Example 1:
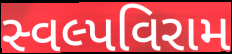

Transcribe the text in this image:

સ્વલ્પવિરામ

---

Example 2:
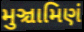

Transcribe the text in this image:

મુઞ્ચામિણં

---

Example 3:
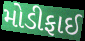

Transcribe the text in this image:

મોડીફાઈ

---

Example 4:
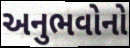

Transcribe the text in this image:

અનુભવોનો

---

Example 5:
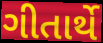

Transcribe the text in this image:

ગીતાર્થે